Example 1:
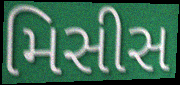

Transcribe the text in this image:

મિસીસ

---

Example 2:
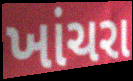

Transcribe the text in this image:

ખાંચરા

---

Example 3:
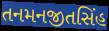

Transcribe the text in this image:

તનમનજીતસિંહ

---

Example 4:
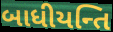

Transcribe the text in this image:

બાધીયન્તિ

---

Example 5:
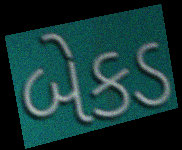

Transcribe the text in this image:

બેકડ